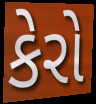
કેરો